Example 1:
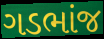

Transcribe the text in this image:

ગડભાંજ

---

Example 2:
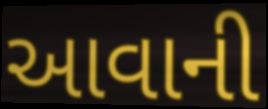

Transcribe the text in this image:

આવાની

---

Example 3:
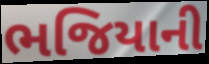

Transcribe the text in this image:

ભજિયાની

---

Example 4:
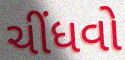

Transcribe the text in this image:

ચીંધવો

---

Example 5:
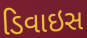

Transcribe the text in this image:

ડિવાઇસ